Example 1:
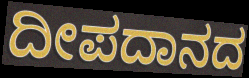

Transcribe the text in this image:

ದೀಪದಾನದ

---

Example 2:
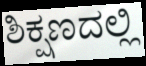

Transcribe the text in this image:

ಶಿಕ್ಷಣದಲ್ಲಿ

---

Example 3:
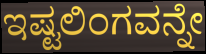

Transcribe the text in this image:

ಇಷ್ಟಲಿಂಗವನ್ನೇ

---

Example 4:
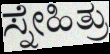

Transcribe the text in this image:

ಸ್ನೇಹಿತ್ರು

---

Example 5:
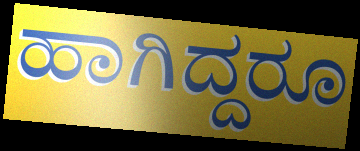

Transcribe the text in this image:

ಹಾಗಿದ್ದರೂ